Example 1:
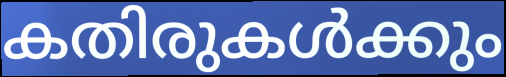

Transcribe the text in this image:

കതിരുകൾക്കും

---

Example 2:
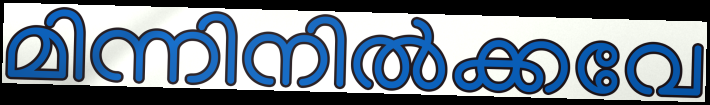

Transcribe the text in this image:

മിന്നിനിൽക്കവേ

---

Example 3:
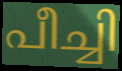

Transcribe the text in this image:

പീച്ചി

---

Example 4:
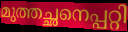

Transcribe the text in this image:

മുത്തച്ഛനെപ്പറ്റി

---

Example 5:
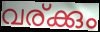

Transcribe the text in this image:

വര്ക്കും